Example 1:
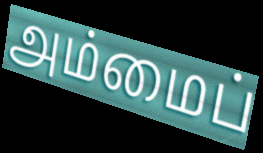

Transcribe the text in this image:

அம்மைப்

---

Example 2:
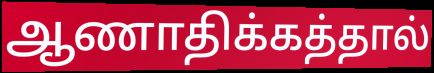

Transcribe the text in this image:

ஆணாதிக்கத்தால்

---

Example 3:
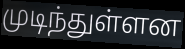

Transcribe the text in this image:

முடிந்துள்ளன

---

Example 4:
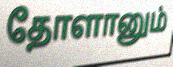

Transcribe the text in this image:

தோளானும்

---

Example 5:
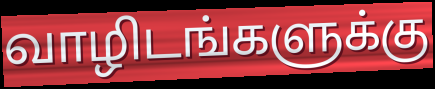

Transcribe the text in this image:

வாழிடங்களுக்கு